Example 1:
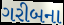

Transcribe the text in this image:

ગરીબના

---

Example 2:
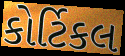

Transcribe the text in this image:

કોર્ટિકલ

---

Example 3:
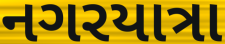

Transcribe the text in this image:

નગરયાત્રા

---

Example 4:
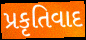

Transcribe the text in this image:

પ્રકૃતિવાદ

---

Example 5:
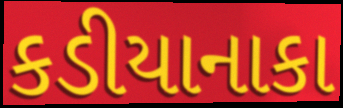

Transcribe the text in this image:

કડીયાનાકા